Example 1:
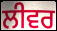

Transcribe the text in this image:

ਲੀਵਰ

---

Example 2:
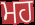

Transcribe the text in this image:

ਮਹ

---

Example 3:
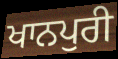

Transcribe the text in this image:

ਖਾਨਪੁਰੀ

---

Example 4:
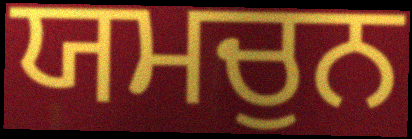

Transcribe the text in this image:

ਯਮਚੁਨ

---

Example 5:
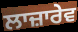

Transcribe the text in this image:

ਲਾਜ਼ਾਰੇਵ